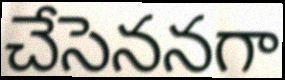
చేసెననగా